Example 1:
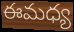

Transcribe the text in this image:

ఈమధ్య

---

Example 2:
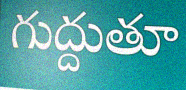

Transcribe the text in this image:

గుద్దుతూ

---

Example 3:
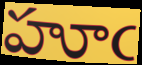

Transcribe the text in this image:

హూఁ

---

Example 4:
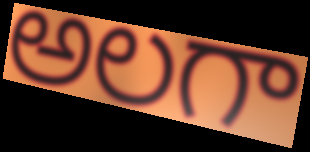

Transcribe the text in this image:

అలగా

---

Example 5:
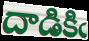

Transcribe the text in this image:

దాడికిఁ